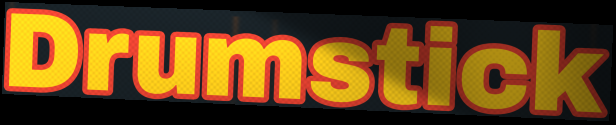
Drumstick